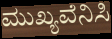
ಮುಖ್ಯವೆನಿಸಿ